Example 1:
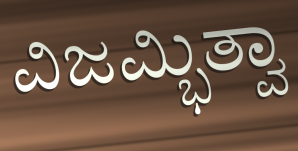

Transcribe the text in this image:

ವಿಜಮ್ಭಿತ್ವಾ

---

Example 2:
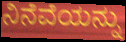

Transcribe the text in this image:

ನಿನೆವೆಯನ್ನು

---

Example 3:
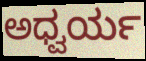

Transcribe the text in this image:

ಅಧ್ವರ್ಯ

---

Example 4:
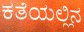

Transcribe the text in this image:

ಕತೆಯಲ್ಲಿನ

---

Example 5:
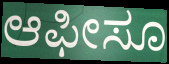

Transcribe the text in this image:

ಆಫೀಸೂ